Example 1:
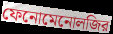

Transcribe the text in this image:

ফেনোমেনোলজির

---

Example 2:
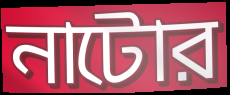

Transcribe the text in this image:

নাটোর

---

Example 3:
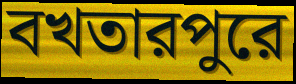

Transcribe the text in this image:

বখতারপুরে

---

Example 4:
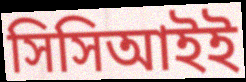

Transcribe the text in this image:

সিসিআইই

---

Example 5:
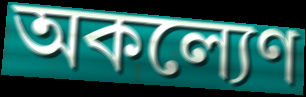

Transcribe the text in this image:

অকল্যেণ